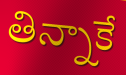
తిన్నాకే